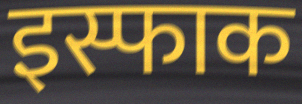
इस्फाक